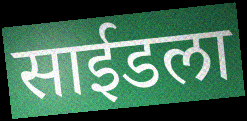
साईडला